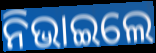
ନିଭାଇଲେ